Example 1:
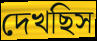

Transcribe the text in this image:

দেখছিস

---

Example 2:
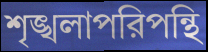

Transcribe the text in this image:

শৃঙ্খলাপরিপন্থি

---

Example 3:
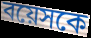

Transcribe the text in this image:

বয়েসকে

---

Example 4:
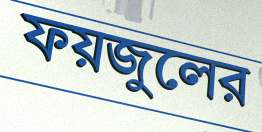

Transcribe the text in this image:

ফয়জুলের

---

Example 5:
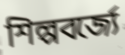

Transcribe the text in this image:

শিল্পবর্জ্যে